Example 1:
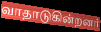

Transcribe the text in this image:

வாதாடுகின்றனர்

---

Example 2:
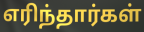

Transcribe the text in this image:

எரிந்தார்கள்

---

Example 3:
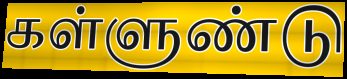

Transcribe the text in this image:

கள்ளுண்டு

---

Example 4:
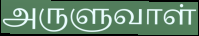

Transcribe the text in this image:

அருளுவாள்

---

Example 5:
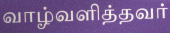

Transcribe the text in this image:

வாழ்வளித்தவர்